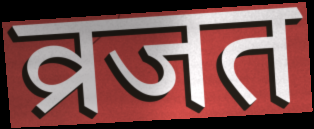
व्रजत